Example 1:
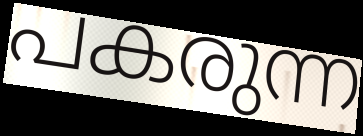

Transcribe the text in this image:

പകരുന്ന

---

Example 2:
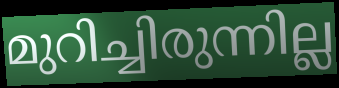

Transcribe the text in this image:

മുറിച്ചിരുന്നില്ല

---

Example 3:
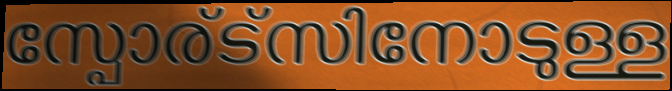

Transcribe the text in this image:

സ്പോര്ട്സിനോടുള്ള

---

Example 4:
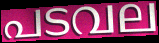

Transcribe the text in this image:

പടവല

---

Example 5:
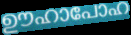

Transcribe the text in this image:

ഊഹാപോഹ